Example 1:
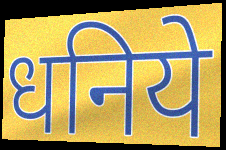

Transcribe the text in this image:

धनिये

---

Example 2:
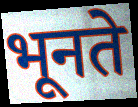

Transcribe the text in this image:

भूनते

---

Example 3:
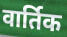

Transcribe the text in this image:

वार्तिक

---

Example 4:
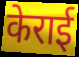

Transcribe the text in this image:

केराई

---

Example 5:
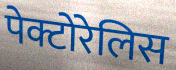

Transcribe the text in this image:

पेक्टोरेलिस